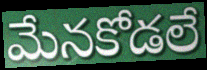
మేనకోడలే